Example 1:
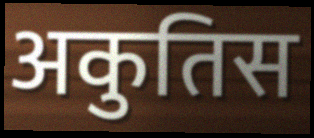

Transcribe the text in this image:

अकुतिस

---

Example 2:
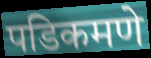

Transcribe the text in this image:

पडिकमणे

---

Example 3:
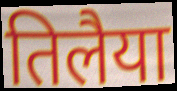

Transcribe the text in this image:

तिलैया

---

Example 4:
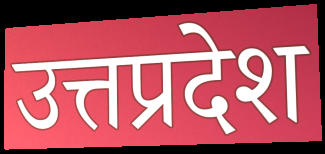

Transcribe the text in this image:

उत्तप्रदेश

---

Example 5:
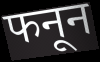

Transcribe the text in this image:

फनून